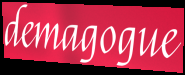
demagogue